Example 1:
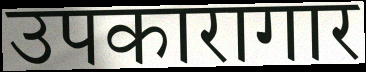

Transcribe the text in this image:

उपकारागार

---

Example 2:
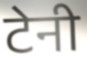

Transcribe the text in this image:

टेनी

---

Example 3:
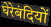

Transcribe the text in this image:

घेरेबंदियों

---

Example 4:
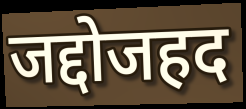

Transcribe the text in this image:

जद्दोजहद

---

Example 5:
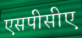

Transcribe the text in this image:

एसपीसीए